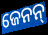
ଜେନନ୍